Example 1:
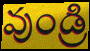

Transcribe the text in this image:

వుండ్రి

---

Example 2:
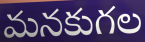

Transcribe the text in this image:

మనకుగల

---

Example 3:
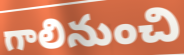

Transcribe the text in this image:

గాలినుంచి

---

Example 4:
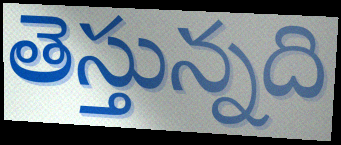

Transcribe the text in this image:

తెస్తున్నది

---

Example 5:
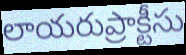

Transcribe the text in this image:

లాయరుప్రాక్టీసు